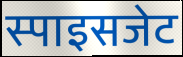
स्पाइसजेट